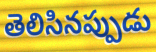
తెలిసినప్పుడు